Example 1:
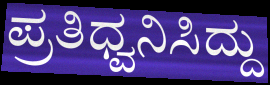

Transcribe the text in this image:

ಪ್ರತಿಧ್ವನಿಸಿದ್ದು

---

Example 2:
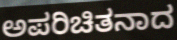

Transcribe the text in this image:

ಅಪರಿಚಿತನಾದ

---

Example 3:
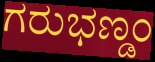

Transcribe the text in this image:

ಗರುಭಣ್ಡಂ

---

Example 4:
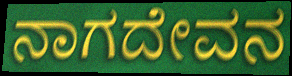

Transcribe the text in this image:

ನಾಗದೇವನ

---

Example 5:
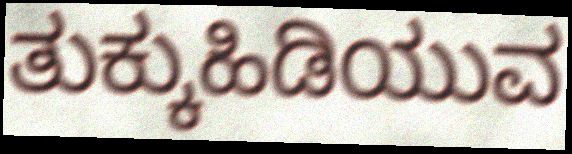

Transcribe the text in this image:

ತುಕ್ಕುಹಿಡಿಯುವ